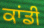
ਕਾਂਡੀ